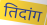
तिदांग